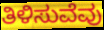
ತಿಳಿಸುವೆವು